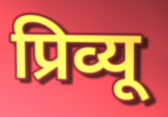
प्रिव्यू